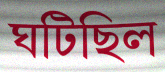
ঘটিছিল